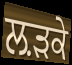
ਲ਼ਡ਼ਕੇ